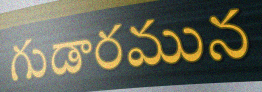
గుడారమున